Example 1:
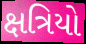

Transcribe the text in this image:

ક્ષત્રિયો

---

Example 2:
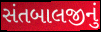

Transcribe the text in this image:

સંતબાલજીનું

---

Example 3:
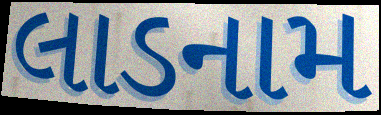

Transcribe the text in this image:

લાડનામ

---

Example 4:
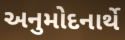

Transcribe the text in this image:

અનુમોદનાર્થે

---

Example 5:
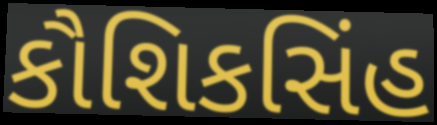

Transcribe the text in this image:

કૌશિકસિંહ